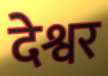
देश्वर